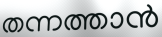
തന്നത്താൻ